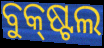
ବୁକ୍‌ଷ୍ଟଲ